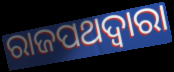
ରାଜପଥଦ୍ୱାରା